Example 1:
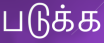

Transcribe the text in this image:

படுக்க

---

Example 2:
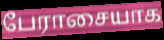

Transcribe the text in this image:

பேராசையாக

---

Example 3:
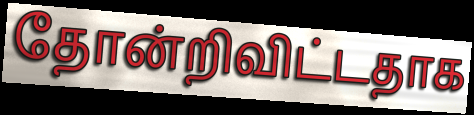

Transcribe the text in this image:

தோன்றிவிட்டதாக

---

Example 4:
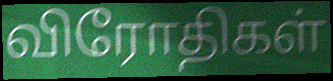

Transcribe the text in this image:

விரோதிகள்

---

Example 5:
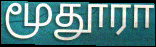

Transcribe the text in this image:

மூதூரா